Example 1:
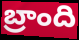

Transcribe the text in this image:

బ్రాంది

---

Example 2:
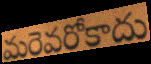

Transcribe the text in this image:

మరెవరోకాదు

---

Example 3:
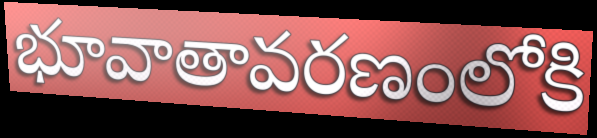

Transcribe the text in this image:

భూవాతావరణంలోకి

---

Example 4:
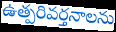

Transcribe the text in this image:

ఉత్పరివర్తనాలను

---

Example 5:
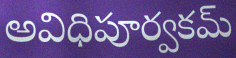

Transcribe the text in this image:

అవిధిపూర్వకమ్